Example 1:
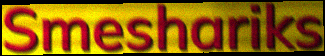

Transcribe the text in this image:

Smeshariks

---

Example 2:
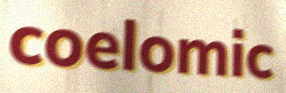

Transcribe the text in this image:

coelomic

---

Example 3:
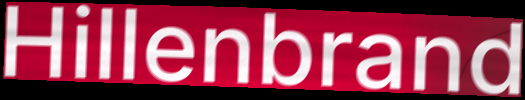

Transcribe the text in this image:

Hillenbrand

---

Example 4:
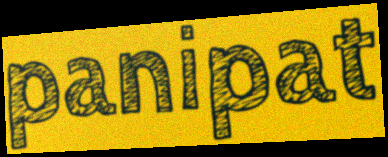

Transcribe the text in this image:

panipat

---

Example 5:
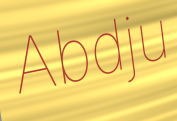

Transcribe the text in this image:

Abdju